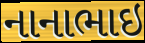
નાનાભાઇ